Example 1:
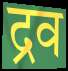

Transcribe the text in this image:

द्रव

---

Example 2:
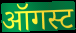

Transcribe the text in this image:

ऑगस्ट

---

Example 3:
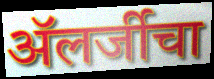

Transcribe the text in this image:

ॲलर्जीचा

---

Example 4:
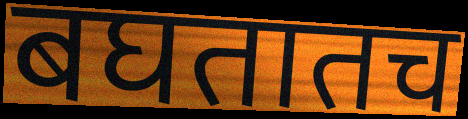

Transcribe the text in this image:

बघतातच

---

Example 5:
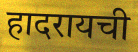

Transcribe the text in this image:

हादरायची